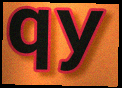
qy